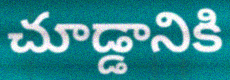
చూడ్డానికి